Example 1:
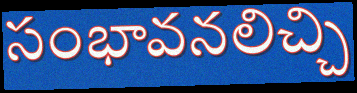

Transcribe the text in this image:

సంభావనలిచ్చి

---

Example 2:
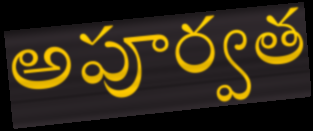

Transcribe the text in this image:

అపూర్వత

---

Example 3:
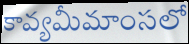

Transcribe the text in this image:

కావ్యమీమాంసలో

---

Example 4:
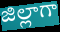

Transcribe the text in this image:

జిల్లాగా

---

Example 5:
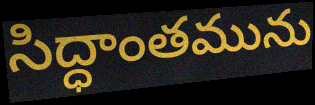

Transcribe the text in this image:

సిద్ధాంతమును